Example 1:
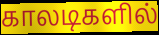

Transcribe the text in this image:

காலடிகளில்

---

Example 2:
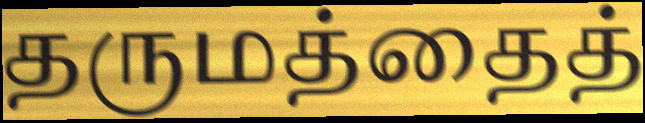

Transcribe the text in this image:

தருமத்தைத்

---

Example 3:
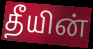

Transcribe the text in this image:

தீயின்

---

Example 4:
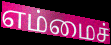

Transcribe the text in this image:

எம்மைச்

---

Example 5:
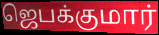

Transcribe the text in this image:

ஜெபக்குமார்